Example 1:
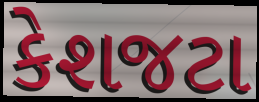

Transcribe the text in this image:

કેશજટા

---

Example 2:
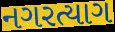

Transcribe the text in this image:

નગરત્યાગ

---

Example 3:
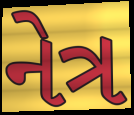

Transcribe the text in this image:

નેત્ર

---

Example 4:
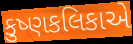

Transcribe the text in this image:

કુષ્ણકલિકાએ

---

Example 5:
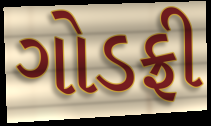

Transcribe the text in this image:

ગોડફ્રી